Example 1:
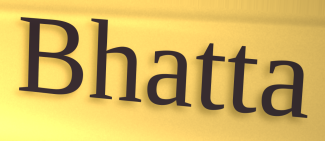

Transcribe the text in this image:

Bhatta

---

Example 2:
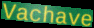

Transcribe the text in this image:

Vachave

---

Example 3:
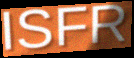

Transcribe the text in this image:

ISFR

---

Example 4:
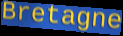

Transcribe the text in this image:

Bretagne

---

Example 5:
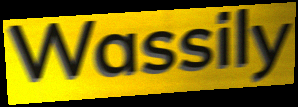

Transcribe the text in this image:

Wassily